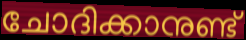
ചോദിക്കാനുണ്ട്